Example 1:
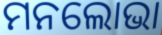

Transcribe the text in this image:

ମନଲୋଭା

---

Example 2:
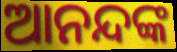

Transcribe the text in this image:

ଆନନ୍ଦଙ୍କ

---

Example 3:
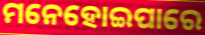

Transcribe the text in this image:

ମନେହୋଇପାରେ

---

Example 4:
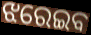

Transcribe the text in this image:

ଝରେଇବ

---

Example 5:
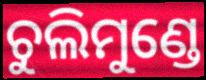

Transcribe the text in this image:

ଚୁଲିମୁଣ୍ଡେ